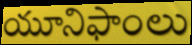
యూనిఫాంలు